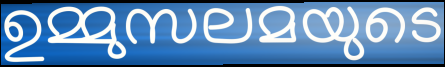
ഉമ്മുസലമയുടെ